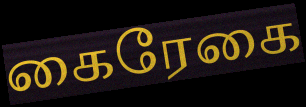
கைரேகை